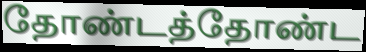
தோண்டத்தோண்ட